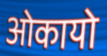
ओकायो